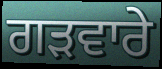
ਗੜਵਾਰੇ